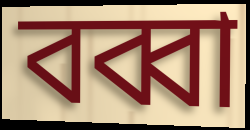
বব্বা